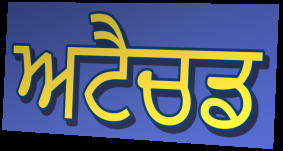
ਅਟੈਚਡ